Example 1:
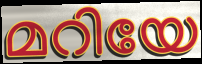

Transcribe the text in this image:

മറിയേ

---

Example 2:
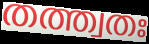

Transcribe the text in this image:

തത്ത്വതഃ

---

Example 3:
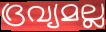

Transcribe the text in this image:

ദ്രവ്യമല്ല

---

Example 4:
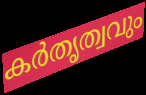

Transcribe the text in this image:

കർതൃത്വവും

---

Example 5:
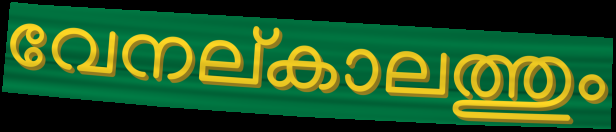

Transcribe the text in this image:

വേനല്കാലത്തും